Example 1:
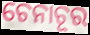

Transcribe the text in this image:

ଚେନାଚୂର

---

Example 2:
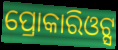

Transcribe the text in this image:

ପ୍ରୋକାରିଓଟ୍ସ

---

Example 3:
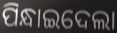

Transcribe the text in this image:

ପିନ୍ଧାଇଦେଲା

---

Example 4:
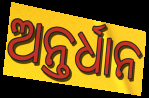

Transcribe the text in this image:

ଅନ୍ତର୍ଧାନ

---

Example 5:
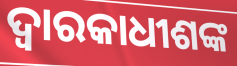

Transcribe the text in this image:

ଦ୍ୱାରକାଧୀଶଙ୍କ